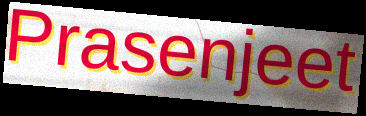
Prasenjeet